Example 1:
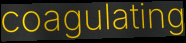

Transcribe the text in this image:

coagulating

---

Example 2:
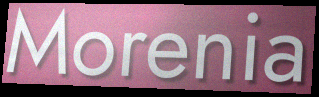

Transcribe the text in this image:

Morenia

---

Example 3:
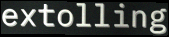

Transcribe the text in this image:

extolling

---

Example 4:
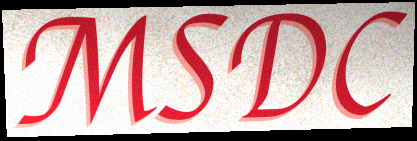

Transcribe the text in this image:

MSDC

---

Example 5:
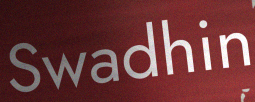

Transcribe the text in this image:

Swadhin